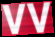
VV